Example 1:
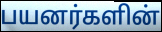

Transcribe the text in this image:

பயனர்களின்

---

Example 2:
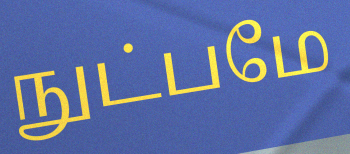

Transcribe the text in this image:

நுட்பமே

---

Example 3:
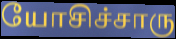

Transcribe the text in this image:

யோசிச்சாரு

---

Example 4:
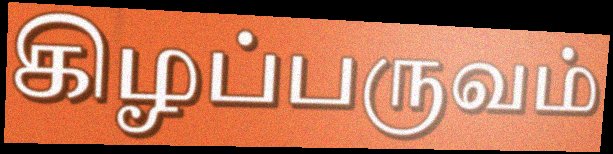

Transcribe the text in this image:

கிழப்பருவம்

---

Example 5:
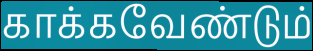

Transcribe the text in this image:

காக்கவேண்டும்